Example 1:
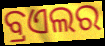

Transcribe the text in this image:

ବ୍ରଏଲର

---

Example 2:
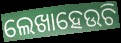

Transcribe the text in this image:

ଲେଖାହେଉଚି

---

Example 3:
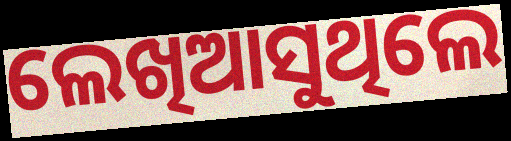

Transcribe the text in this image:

ଲେଖିଆସୁଥିଲେ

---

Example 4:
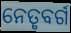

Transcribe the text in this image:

ନେତୃବର୍ଗ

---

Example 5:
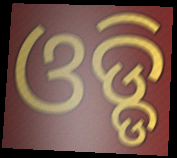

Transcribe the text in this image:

ଓଡ୍ଡି